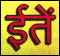
ईतें